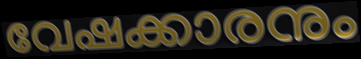
വേഷക്കാരനും